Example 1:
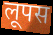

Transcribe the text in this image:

लूपस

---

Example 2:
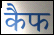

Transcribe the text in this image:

कैफ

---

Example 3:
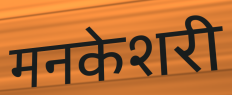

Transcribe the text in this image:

मनकेशरी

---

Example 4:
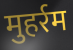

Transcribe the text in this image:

मुहर्रम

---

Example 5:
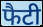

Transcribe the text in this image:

फैटी